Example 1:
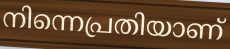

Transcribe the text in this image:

നിന്നെപ്രതിയാണ്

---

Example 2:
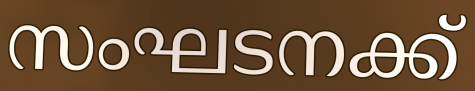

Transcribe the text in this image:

സംഘടനക്ക്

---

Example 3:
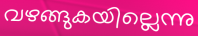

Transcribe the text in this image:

വഴങ്ങുകയില്ലെന്നു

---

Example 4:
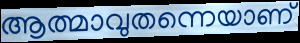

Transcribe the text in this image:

ആത്മാവുതന്നെയാണ്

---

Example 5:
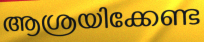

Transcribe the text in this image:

ആശ്രയിക്കേണ്ട